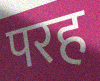
परह